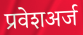
प्रवेशअर्ज